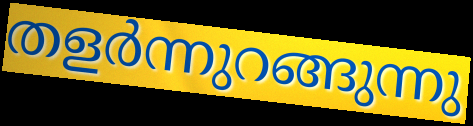
തളർന്നുറങ്ങുന്നു